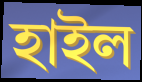
হাইল